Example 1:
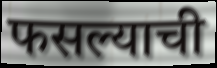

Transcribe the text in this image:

फसल्याची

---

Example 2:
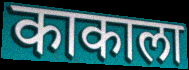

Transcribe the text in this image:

काकाला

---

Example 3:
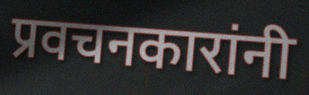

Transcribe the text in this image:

प्रवचनकारांनी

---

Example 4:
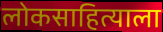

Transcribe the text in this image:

लोकसाहित्याला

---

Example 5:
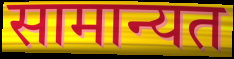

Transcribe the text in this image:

सामान्यत